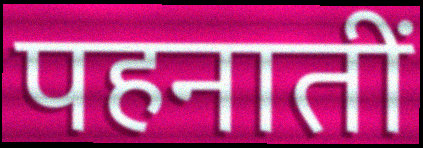
पहनातीं